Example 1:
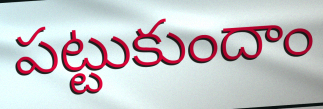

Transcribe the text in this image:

పట్టుకుందాం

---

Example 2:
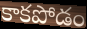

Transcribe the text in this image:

కాకపోడం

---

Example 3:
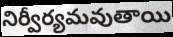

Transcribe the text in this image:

నిర్వీర్యమవుతాయి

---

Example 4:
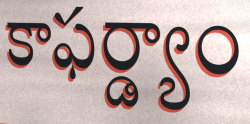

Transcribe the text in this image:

కాఫర్డ్యాం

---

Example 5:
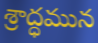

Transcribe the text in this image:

శ్రాద్ధమున